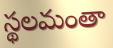
స్థలమంతా